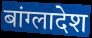
बांग्लादेश